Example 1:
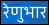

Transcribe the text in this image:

रेणुभार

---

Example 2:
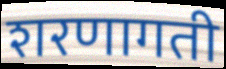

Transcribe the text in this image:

शरणागती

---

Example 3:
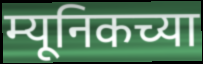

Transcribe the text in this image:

म्यूनिकच्या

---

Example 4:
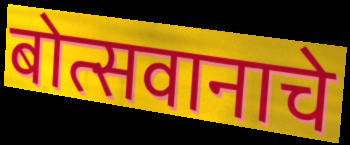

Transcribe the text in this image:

बोत्सवानाचे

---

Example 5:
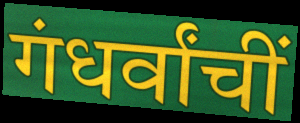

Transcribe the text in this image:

गंधर्वांचीं